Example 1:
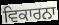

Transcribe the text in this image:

ਵਿਕਾਰਨਾ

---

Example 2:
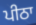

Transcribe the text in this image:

ਪੀਠਾ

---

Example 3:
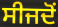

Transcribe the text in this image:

ਸੀਜਦੋਂ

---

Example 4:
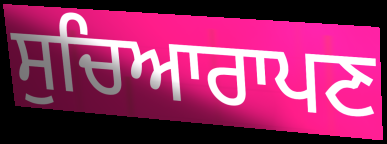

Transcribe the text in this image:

ਸੁਚਿਆਰਾਪਣ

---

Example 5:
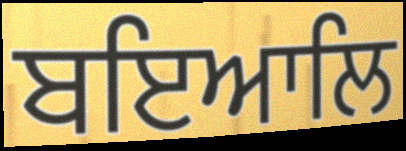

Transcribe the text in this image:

ਬਇਆਲਿ